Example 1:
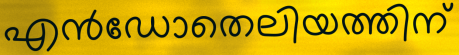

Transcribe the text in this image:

എൻഡോതെലിയത്തിന്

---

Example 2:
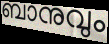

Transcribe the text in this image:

ബാനുവും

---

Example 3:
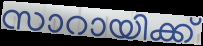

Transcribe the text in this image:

സാറായിക്ക്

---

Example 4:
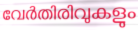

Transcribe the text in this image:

വേർതിരിവുകളും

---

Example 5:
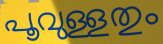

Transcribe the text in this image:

പൂവുള്ളതും